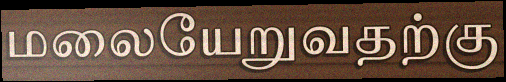
மலையேறுவதற்கு